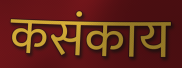
कसंकाय